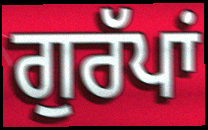
ਗੁਰੱਪਾਂ